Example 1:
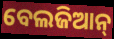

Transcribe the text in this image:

ବେଲଜିଆନ୍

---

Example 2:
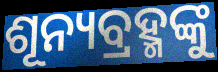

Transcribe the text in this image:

ଶୂନ୍ୟବ୍ରହ୍ମଙ୍କୁ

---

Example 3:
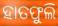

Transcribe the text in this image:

ହାତଫୁଲି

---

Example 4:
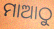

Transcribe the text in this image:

ମାଆଠୁ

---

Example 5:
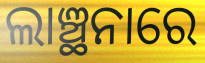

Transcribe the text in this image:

ଲାଞ୍ଛନାରେ